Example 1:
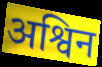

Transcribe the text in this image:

अश्विन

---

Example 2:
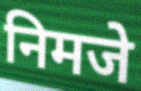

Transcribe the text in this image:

निमजे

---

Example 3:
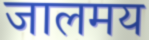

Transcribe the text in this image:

जालमय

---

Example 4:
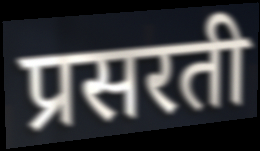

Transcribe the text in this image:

प्रसरती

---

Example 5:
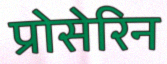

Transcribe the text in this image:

प्रोसेरिन